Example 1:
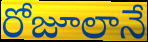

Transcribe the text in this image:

రోజూలానే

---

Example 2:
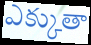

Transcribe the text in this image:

ఎక్కుతా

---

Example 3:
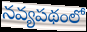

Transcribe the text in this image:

నవ్యపథంలో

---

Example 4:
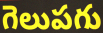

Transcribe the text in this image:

గెలుపగు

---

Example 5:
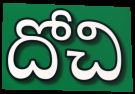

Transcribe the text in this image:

దోచి